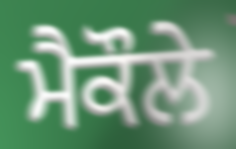
ਮੈਕੌਲੇ